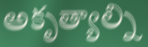
అకృత్యాల్ని